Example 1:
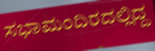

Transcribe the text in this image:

ಸಭಾಮಂದಿರದಲ್ಲಿದ್ದ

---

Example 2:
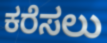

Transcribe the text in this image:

ಕರೆಸಲು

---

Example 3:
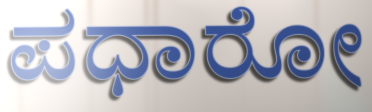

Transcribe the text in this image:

ಪಧಾರೋ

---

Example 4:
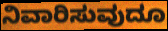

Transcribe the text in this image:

ನಿವಾರಿಸುವುದೂ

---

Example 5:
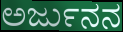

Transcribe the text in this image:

ಅರ್ಜುನನ